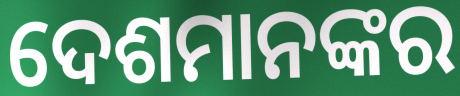
ଦେଶମାନଙ୍କର